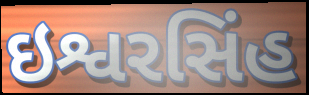
ઇશ્વરસિંહ